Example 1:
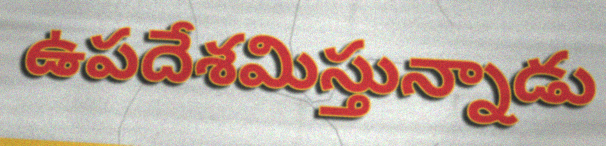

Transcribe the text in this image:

ఉపదేశమిస్తున్నాడు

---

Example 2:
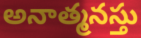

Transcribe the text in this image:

అనాత్మనస్తు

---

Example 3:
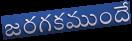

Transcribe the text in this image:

జరగకముందే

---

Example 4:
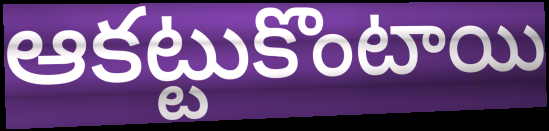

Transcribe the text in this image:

ఆకట్టుకొంటాయి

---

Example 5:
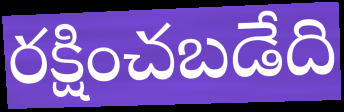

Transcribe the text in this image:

రక్షించబడేది